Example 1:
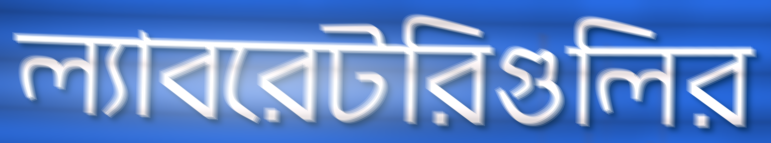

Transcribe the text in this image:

ল্যাবরেটরিগুলির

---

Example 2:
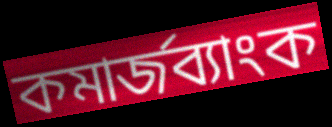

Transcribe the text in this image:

কমার্জব্যাংক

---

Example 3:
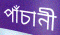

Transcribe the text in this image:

পাঁচানী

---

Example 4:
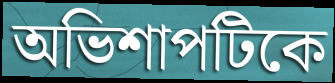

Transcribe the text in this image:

অভিশাপটিকে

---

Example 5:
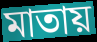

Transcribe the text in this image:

মাতায়